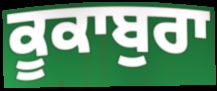
ਕੂਕਾਬੁਰਾ